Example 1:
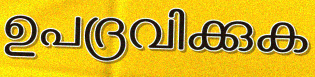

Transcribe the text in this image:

ഉപദ്രവിക്കുക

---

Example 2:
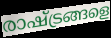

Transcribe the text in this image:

രാഷ്ട്രങ്ങളെ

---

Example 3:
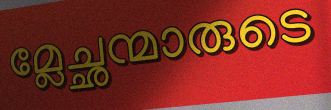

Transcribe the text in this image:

മ്ലേച്ഛന്മാരുടെ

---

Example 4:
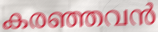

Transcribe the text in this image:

കരഞ്ഞവൻ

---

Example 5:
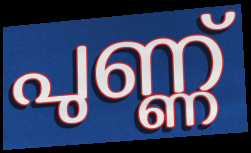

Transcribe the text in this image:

പുണ്ണ്